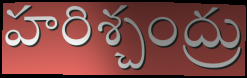
హరిశ్చంద్రు